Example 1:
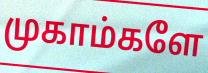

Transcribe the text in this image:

முகாம்களே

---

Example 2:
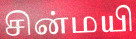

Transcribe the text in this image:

சின்மயி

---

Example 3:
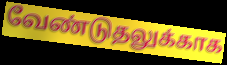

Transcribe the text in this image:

வேண்டுதலுக்காக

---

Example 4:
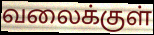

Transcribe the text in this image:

வலைக்குள்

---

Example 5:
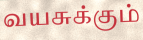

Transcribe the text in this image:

வயசுக்கும்